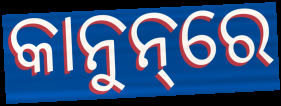
କାନୁନ୍‌ରେ